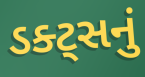
ડક્ટ્સનું